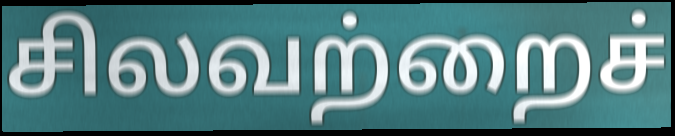
சிலவற்றைச்